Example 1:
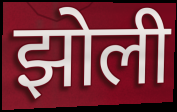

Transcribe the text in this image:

झोली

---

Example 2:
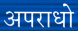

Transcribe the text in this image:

अपराधो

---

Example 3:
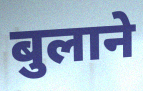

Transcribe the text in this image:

बुलाने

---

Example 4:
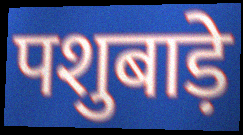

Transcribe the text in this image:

पशुबाड़े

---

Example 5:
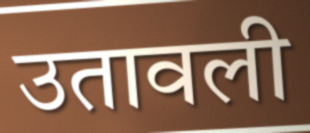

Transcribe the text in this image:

उतावली